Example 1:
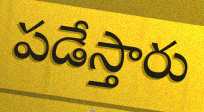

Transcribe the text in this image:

పడేస్తారు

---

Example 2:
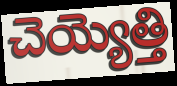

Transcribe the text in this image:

చెయ్యెత్తి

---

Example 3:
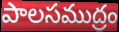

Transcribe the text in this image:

పాలసముద్రం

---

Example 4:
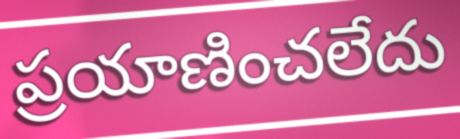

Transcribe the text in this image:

ప్రయాణించలేదు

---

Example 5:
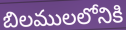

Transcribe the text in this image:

బిలములలోనికి